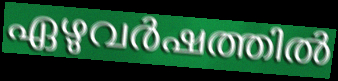
ഏഴുവർഷത്തിൽ